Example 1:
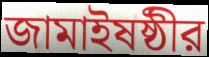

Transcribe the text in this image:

জামাইষষ্ঠীর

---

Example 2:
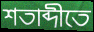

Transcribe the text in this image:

শতাব্দীতে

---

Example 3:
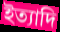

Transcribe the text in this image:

ইত্যাদি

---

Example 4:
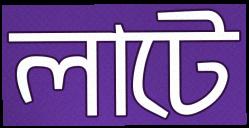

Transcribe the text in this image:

লাটে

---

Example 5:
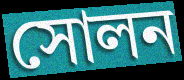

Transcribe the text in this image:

সোলন